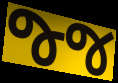
જ્જ